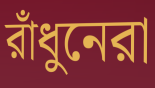
রাঁধুনেরা